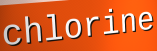
chlorine